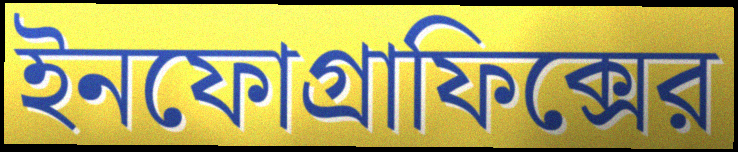
ইনফোগ্রাফিক্সের